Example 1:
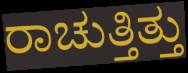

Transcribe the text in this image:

ರಾಚುತ್ತಿತ್ತು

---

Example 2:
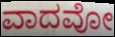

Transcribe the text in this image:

ವಾದವೋ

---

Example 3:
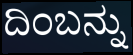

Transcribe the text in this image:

ದಿಂಬನ್ನು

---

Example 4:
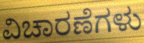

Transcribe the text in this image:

ವಿಚಾರಣೆಗಳು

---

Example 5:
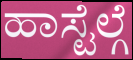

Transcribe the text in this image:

ಹಾಸ್ಟೆಲ್ಗೆ